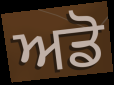
ਅਡੋ